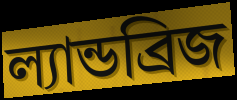
ল্যান্ডব্রিজ